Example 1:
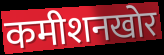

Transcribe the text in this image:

कमीशनखोर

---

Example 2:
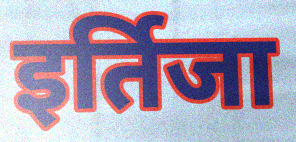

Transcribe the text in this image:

इर्तिजा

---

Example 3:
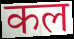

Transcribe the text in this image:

कल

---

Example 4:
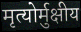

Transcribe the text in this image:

मृत्‍योर्मुक्षीय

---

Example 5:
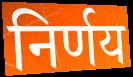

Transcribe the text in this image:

निर्णय